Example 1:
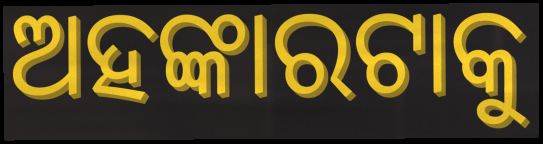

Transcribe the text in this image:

ଅହଙ୍କାରଟାକୁ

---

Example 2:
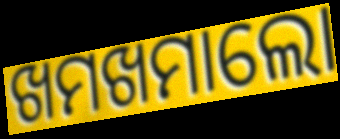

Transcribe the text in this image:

ଖମଖମାଲୋ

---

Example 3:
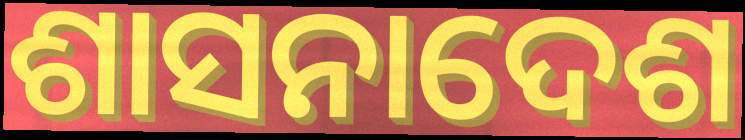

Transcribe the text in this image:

ଶାସନାଦେଶ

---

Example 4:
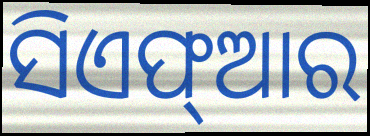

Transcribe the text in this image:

ସିଏଫ୍ଆର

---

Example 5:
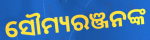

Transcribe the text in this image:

ସୌମ୍ୟରଞ୍ଜନଙ୍କ